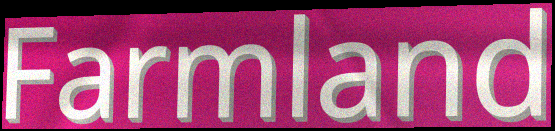
Farmland